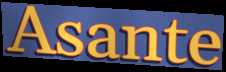
Asante